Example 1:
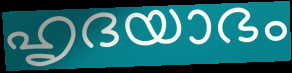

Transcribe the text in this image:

ഹൃദയാഭം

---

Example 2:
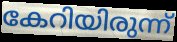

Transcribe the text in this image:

കേറിയിരുന്ന്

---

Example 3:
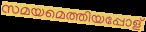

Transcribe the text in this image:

സമയമെത്തിയപ്പോള്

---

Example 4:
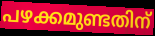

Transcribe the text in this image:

പഴക്കമുണ്ടതിന്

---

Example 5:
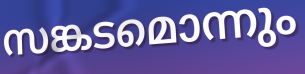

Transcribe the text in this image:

സങ്കടമൊന്നും